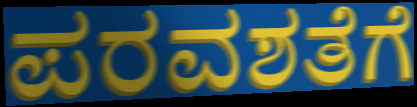
ಪರವಶತೆಗೆ